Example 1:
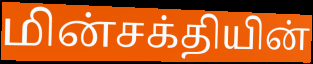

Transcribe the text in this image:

மின்சக்தியின்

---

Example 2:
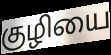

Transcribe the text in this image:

குழியை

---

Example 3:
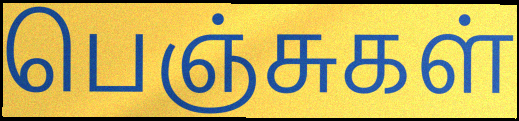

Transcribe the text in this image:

பெஞ்சுகள்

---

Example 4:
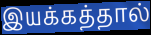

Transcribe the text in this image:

இயக்கத்தால்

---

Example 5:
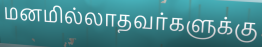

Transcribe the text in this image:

மனமில்லாதவர்களுக்கு